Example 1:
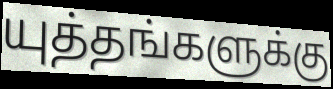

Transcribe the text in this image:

யுத்தங்களுக்கு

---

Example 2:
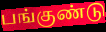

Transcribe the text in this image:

பங்குண்டு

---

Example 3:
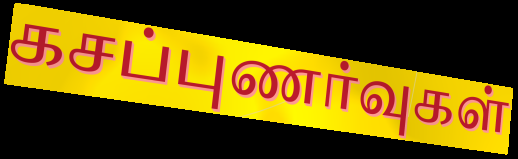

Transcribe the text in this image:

கசப்புணர்வுகள்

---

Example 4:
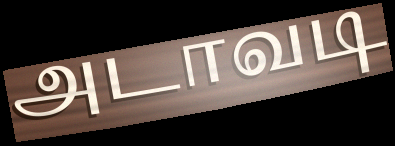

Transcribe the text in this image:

அடாவடி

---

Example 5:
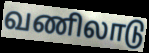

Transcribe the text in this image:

வணிலாடு